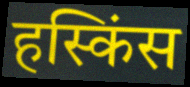
हस्किंस